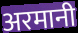
अरमानी